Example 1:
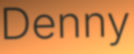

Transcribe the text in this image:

Denny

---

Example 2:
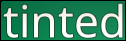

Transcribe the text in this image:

tinted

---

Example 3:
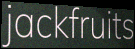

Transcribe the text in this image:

jackfruits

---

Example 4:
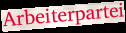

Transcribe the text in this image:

Arbeiterpartei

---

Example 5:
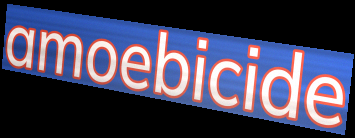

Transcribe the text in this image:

amoebicide